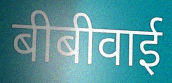
बीबीवाई